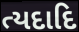
ત્યદાદિ